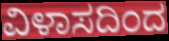
ವಿಳಾಸದಿಂದ